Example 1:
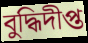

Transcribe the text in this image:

বুদ্ধিদীপ্ত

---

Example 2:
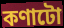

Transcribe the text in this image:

কণাটো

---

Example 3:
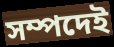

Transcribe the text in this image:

সম্পদেই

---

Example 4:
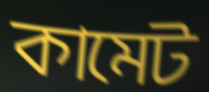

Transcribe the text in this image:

কামেট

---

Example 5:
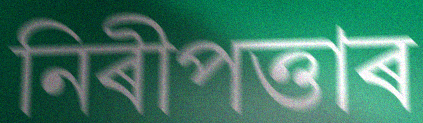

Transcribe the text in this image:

নিৰীপত্তাৰ